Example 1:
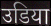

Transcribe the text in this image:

उडिया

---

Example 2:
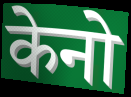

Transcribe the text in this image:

केनो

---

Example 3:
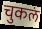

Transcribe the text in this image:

चुकलं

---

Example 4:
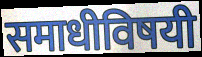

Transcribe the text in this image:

समाधीविषयी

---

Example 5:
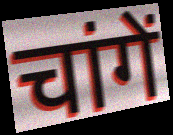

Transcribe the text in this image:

चांगें